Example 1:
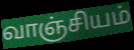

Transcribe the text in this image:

வாஞ்சியம்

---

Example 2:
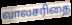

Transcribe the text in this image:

வாலசரிதை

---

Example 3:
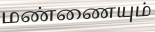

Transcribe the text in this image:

மண்ணையும்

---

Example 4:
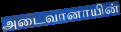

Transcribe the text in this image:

அடைவானாயின்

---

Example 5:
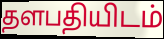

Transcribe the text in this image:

தளபதியிடம்